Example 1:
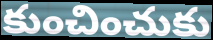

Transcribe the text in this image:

కుంచించుకు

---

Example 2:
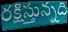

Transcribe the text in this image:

రక్షిస్తున్నది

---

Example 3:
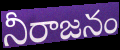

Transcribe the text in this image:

నీరాజనం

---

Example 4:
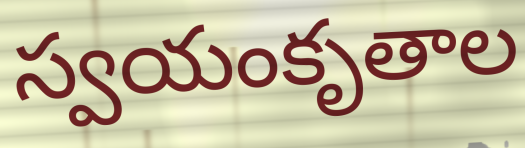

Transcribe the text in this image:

స్వయంకృతాల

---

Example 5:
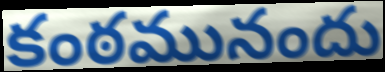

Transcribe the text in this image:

కంఠమునందు